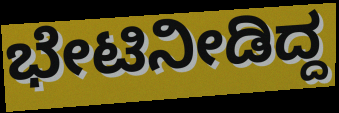
ಭೇಟಿನೀಡಿದ್ದ